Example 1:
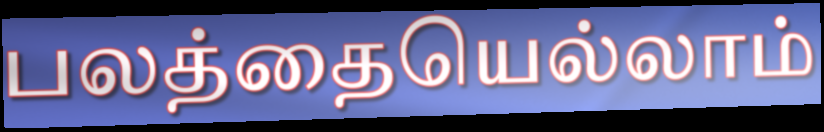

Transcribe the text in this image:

பலத்தையெல்லாம்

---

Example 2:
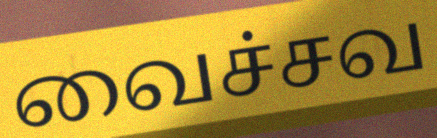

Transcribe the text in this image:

வைச்சவ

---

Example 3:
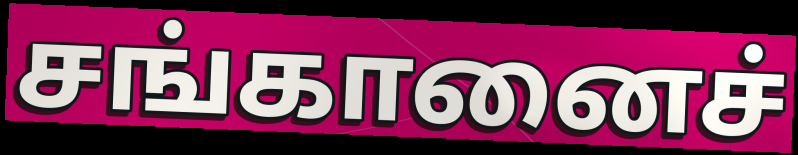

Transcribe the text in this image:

சங்கானைச்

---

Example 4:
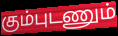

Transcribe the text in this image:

கும்புடணும்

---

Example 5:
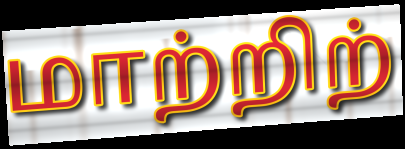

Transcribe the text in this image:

மாற்றிற்